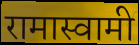
रामास्वामी